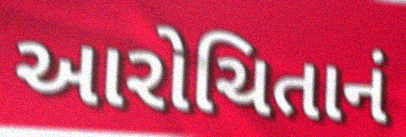
આરોચિતાનં